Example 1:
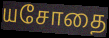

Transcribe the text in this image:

யசோதை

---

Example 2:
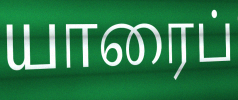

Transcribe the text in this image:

யாரைப்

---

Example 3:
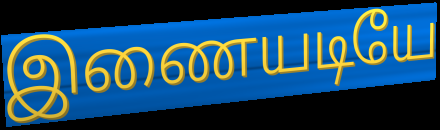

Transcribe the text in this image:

இணையடியே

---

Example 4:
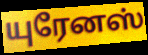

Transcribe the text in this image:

யுரேனஸ்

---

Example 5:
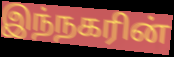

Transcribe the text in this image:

இந்நகரின்